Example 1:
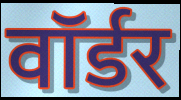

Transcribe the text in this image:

वॉर्डर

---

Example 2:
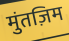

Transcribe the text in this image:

मुंतज़िम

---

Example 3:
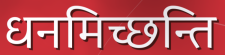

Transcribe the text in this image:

धनमिच्छन्ति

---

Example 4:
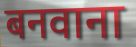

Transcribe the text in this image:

बनवाना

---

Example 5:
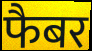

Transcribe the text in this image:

फैबर